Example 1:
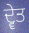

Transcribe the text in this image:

ਦ੍ਵੇਤ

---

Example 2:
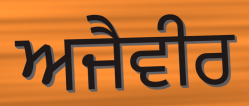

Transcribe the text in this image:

ਅਜੈਵੀਰ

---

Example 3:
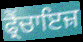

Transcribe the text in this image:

ਫ੍ਰੈਂਚਾਇਜ਼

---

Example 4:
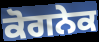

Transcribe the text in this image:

ਕੋਗਨੇਕ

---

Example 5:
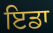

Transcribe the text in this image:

ਇਡਾ